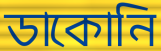
ডাকোনি